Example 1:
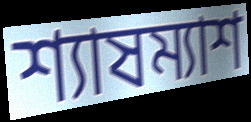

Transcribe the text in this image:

শ্যাষম্যাশ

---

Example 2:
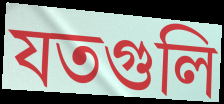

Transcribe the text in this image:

যতগুলি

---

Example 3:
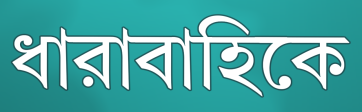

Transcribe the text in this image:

ধারাবাহিকে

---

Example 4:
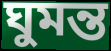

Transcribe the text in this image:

ঘুমন্ত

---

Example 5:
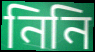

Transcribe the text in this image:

নিনি